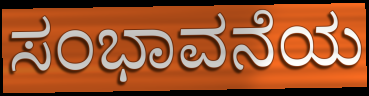
ಸಂಭಾವನೆಯ